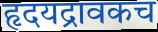
हृदयद्रावकच